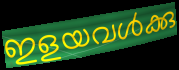
ഇളയവൾക്കു